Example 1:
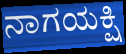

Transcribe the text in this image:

ನಾಗಯಕ್ಷಿ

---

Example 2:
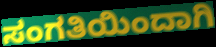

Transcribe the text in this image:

ಸಂಗತಿಯಿಂದಾಗಿ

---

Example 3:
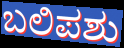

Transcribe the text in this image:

ಬಲಿಪಶು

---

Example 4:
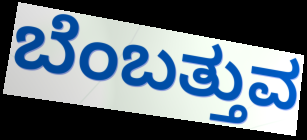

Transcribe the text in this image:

ಬೆಂಬತ್ತುವ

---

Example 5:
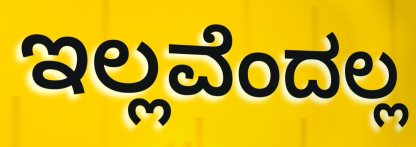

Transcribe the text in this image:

ಇಲ್ಲವೆಂದಲ್ಲ